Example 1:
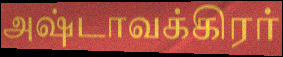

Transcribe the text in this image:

அஷ்டாவக்கிரர்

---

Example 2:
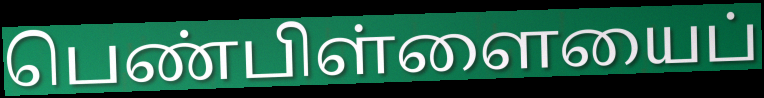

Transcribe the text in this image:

பெண்பிள்ளையைப்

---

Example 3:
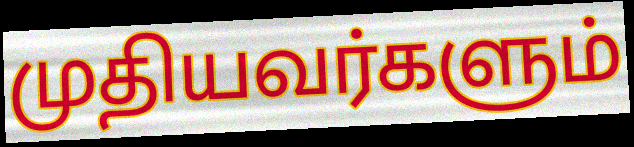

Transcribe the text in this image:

முதியவர்களும்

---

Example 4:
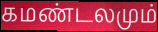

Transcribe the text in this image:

கமண்டலமும்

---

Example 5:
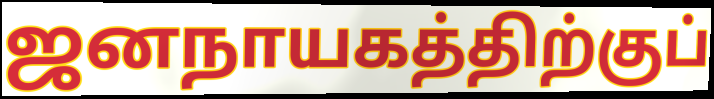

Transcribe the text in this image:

ஜனநாயகத்திற்குப்